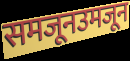
समजूनउमजून